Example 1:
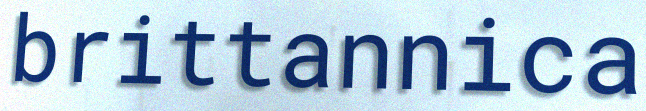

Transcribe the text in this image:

brittannica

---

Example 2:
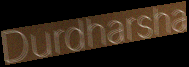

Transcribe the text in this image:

Durdharsha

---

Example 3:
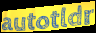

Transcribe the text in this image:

autotldr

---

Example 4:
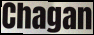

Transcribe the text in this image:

Chagan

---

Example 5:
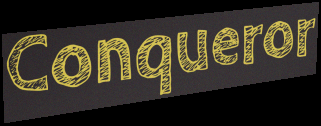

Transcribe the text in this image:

Conqueror